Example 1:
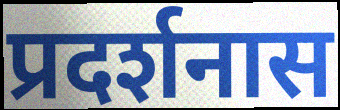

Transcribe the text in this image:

प्रदर्शनास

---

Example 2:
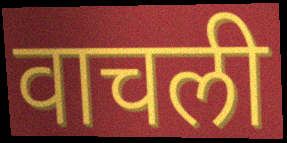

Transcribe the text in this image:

वाचली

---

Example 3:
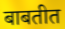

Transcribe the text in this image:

बाबतीत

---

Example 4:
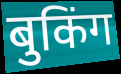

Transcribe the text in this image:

बुकिंग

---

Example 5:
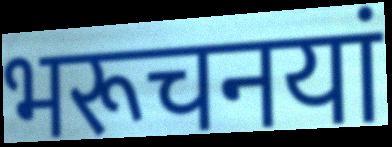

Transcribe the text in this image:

भरूचनयां